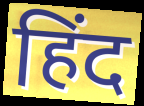
हिंद